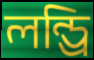
লন্ড্রি